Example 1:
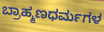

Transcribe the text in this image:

ಬ್ರಾಹ್ಮಣಧರ್ಮಗಳ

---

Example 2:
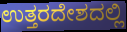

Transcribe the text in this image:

ಉತ್ತರದೇಶದಲ್ಲಿ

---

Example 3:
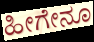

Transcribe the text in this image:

ಹೀಗೇನೂ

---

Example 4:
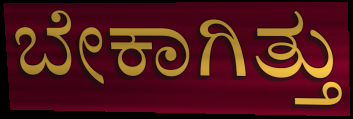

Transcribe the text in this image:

ಬೇಕಾಗಿತ್ತು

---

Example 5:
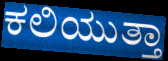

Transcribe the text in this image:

ಕಲಿಯುತ್ತಾ